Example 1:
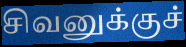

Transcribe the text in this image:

சிவனுக்குச்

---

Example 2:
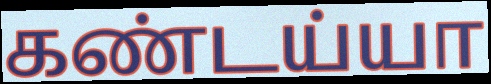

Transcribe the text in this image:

கண்டய்யா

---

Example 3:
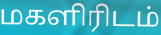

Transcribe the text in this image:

மகளிரிடம்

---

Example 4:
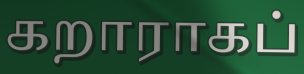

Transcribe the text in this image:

கறாராகப்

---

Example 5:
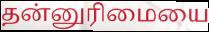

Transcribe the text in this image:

தன்னுரிமையை